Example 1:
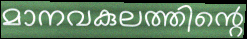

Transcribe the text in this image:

മാനവകുലത്തിന്റെ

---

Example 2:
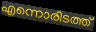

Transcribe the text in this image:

എന്നൊരിടത്ത്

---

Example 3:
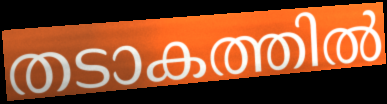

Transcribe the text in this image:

തടാകത്തിൽ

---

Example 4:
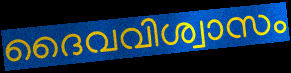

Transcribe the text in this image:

ദൈവവിശ്വാസം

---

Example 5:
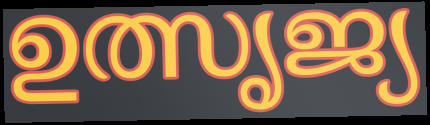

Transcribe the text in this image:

ഉത്സൃജ്യ